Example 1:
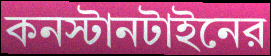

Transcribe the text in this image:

কনস্টানটাইনের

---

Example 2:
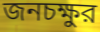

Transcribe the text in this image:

জনচক্ষুর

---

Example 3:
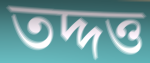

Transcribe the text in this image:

তদ্দত্ত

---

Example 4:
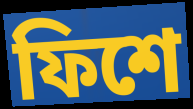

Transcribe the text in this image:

ফিশে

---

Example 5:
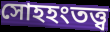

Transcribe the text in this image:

সোহহংতত্ত্ব